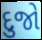
દુજો